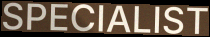
SPECIALIST